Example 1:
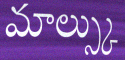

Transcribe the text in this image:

మాల్స్కు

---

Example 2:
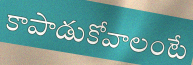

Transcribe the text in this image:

కాపాడుకోవాలంటే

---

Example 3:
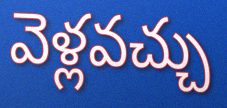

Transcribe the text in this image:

వెళ్లవచ్చు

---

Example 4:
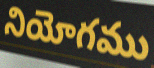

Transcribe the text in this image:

నియోగము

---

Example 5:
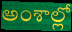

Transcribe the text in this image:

అంశాల్లో